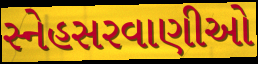
સ્નેહસરવાણીઓ